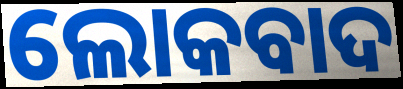
ଲୋକବାଦ